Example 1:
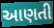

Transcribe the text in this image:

આણતી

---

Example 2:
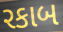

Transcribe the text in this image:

રકાબ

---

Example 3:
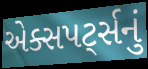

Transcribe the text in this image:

એક્સપર્ટ્સનું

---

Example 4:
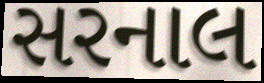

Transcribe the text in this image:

સરનાલ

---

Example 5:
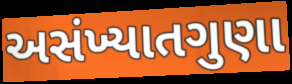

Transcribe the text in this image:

અસંખ્યાતગુણા